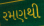
રમણથી